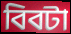
বিবটা